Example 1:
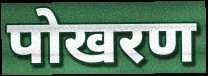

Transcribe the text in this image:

पोखरण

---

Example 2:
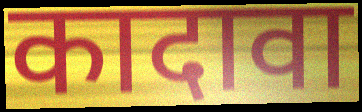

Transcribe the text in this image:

कादावा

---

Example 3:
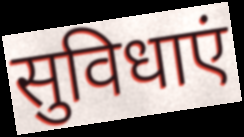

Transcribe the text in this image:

सुविधाएं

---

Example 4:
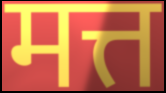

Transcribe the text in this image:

मत्त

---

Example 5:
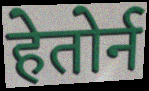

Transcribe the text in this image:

हेतोर्न